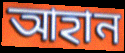
আহান